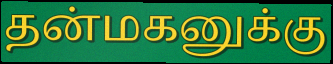
தன்மகனுக்கு